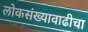
लोकसंख्यावाढीचा